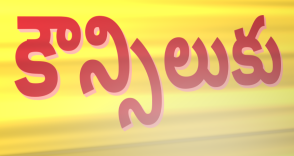
కౌన్సిలుకు